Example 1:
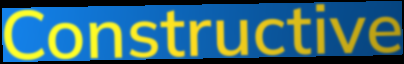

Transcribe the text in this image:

Constructive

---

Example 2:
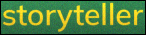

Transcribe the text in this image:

storyteller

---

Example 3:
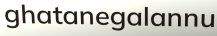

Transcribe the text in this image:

ghatanegalannu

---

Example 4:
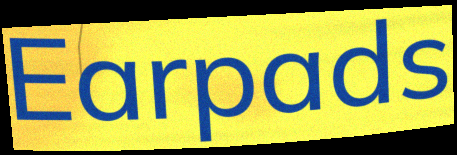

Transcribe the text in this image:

Earpads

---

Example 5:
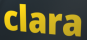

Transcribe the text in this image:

clara